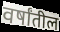
वर्षांतील